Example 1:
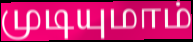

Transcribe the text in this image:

முடியுமாம்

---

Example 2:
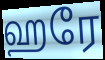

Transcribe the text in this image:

ஹரே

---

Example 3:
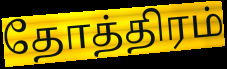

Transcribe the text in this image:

தோத்திரம்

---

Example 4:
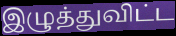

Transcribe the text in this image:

இழுத்துவிட்ட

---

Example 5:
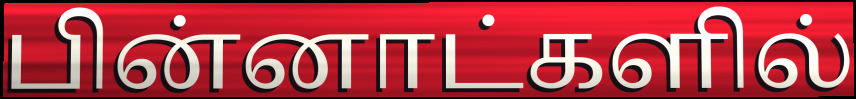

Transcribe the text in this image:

பின்னாட்களில்